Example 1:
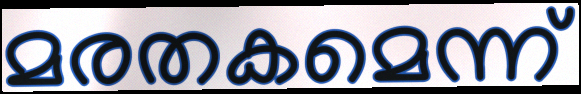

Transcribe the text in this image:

മരതകമെന്ന്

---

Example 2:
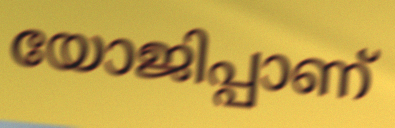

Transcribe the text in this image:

യോജിപ്പാണ്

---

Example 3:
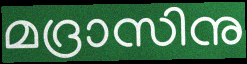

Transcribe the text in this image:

മദ്രാസിനു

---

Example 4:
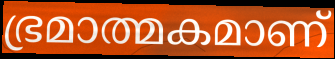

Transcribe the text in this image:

ഭ്രമാത്മകമാണ്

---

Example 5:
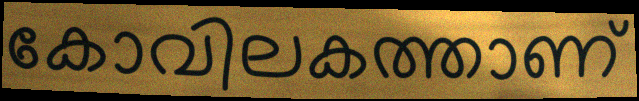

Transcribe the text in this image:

കോവിലകത്താണ്